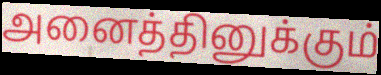
அனைத்தினுக்கும்